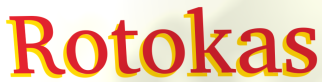
Rotokas